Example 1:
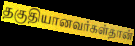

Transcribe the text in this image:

தகுதியானவர்கள்தான்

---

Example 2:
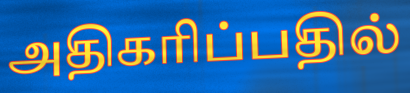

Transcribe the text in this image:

அதிகரிப்பதில்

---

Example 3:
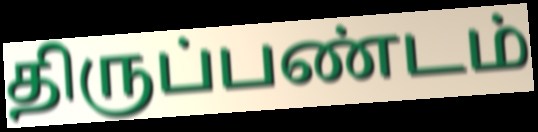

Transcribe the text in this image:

திருப்பண்டம்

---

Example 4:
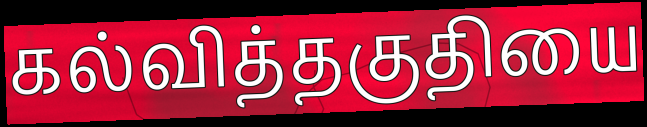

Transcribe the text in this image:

கல்வித்தகுதியை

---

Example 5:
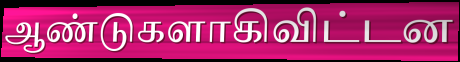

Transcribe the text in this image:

ஆண்டுகளாகிவிட்டன